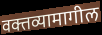
वक्तव्यामागील